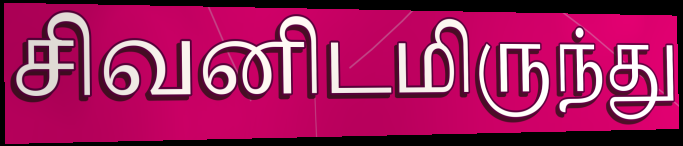
சிவனிடமிருந்து